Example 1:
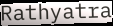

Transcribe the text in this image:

Rathyatra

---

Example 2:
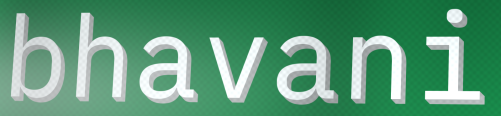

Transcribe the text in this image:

bhavani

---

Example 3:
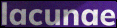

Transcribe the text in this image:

lacunae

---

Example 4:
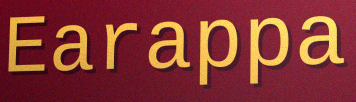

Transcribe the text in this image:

Earappa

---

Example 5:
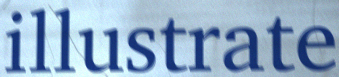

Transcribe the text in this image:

illustrate